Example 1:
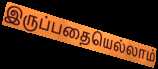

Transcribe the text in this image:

இருப்பதையெல்லாம்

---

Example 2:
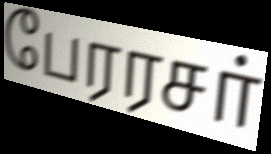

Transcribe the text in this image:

பேரரசர்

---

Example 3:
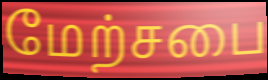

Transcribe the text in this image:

மேற்சபை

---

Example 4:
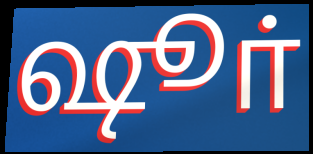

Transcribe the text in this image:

ஷூர்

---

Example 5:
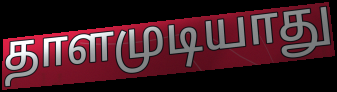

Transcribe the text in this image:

தாளமுடியாது